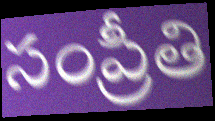
సంప్రీతి